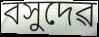
বসুদেৱ